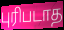
புரிபடாத